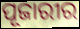
ପୂଜାରୀର